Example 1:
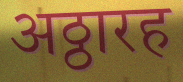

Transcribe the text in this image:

अठ्ठारह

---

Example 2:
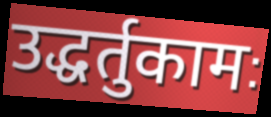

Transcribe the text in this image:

उद्धर्तुकामः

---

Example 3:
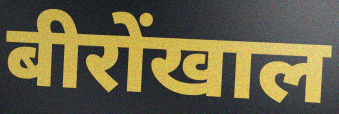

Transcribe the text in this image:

बीरोंखाल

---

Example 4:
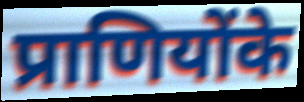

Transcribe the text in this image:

प्राणियोंके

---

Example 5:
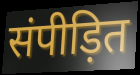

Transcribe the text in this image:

संपीड़ित